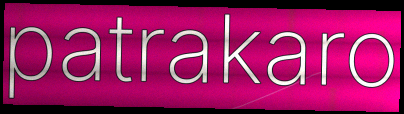
patrakaro